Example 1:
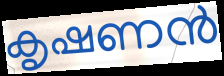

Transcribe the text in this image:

കൃഷണൻ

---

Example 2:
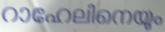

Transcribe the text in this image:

റാഹേലിനെയും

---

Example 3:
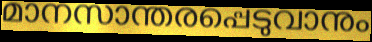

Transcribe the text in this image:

മാനസാന്തരപ്പെടുവാനും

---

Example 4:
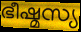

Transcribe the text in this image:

ഭീഷ്മസ്യ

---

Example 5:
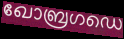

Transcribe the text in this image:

ഖോബ്രഗഡെ